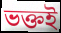
ভক্তই